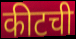
कीटची